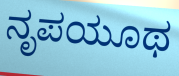
ನೃಪಯೂಥ